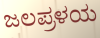
ಜಲಪ್ರಳಯ